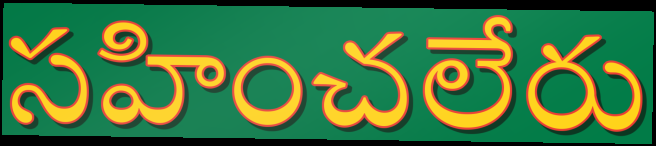
సహించలేరు